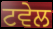
ਟਵੇਲ